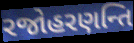
રજોહરણન્તિ